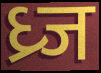
ध्र्ज